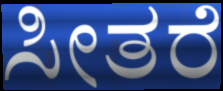
ಸೀತರೆ